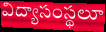
విద్యాసంస్థలూ